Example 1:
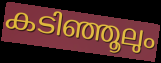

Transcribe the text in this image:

കടിഞ്ഞൂലും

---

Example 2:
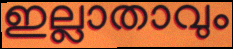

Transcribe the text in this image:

ഇല്ലാതാവും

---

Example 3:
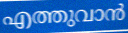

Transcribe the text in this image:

എത്തുവാൻ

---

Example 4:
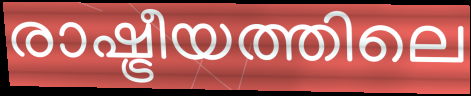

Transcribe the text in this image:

രാഷ്ട്രീയത്തിലെ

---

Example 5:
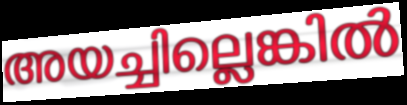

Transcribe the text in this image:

അയച്ചില്ലെങ്കിൽ